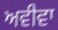
ਅਵੀਵਾ